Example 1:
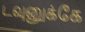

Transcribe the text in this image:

டவுனுக்கே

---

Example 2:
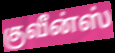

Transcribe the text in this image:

குவீன்ஸ்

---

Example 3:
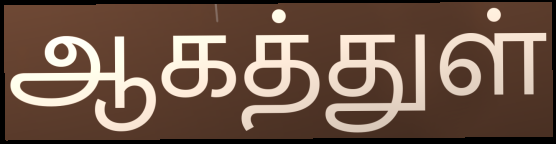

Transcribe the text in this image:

ஆகத்துள்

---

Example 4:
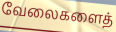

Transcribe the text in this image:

வேலைகளைத்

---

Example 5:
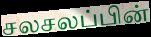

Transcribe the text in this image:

சலசலப்பின்